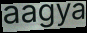
aagya